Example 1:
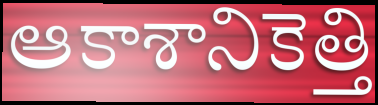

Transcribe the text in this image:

ఆకాశానికెత్తి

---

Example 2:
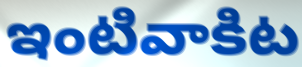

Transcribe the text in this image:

ఇంటివాకిట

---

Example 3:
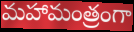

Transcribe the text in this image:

మహామంత్రంగా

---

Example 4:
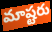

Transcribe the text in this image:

మాష్టరు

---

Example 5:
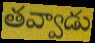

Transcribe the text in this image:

తవ్వాడు